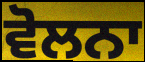
ਵੋਲਨਾ